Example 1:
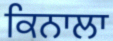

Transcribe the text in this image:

ਕਿਨਾਲਾ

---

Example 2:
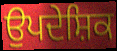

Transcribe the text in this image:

ਉਪਦੇਸ਼ਿਕ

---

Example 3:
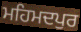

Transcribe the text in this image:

ਮਹਿਮਦਪੁਰ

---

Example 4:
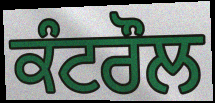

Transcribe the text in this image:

ਕੰਟਰੌਲ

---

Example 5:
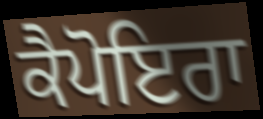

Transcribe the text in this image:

ਕੈਪੋਇਰਾ